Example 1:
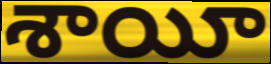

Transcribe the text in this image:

శాయీ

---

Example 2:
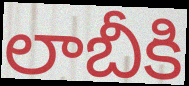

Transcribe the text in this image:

లాబీకి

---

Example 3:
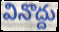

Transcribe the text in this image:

వినొద్దు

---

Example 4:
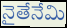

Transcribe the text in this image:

నైతేనేమి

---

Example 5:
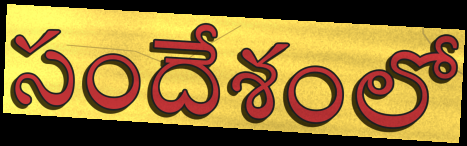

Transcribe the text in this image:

సందేశంలో